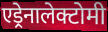
एड्रेनालेक्टोमी